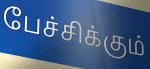
பேச்சிக்கும்